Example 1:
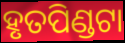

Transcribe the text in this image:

ହୃତପିଣ୍ଡଟା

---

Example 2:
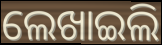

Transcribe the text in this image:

ଲେଖାଇଲି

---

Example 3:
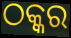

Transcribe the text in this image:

ଠକ୍କର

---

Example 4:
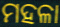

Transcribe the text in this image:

ମହଳା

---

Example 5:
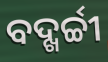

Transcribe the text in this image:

ବଦ୍ଖର୍ଚ୍ଚୀ